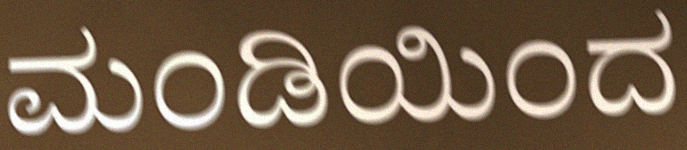
ಮಂಡಿಯಿಂದ